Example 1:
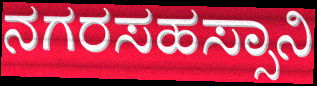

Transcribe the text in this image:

ನಗರಸಹಸ್ಸಾನಿ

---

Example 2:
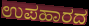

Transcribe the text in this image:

ಉಪಹಾರದ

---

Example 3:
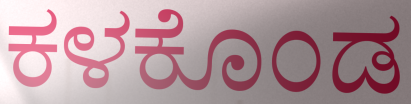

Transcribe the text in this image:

ಕಳಕೊಂಡ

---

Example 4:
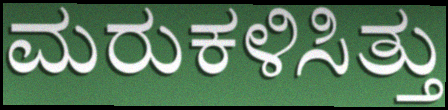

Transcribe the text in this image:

ಮರುಕಳಿಸಿತ್ತು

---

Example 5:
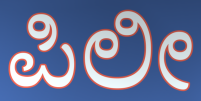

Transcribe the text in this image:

ಪಿಲೀ